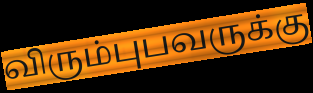
விரும்புபவருக்கு